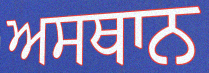
ਅਸਥਾਨ